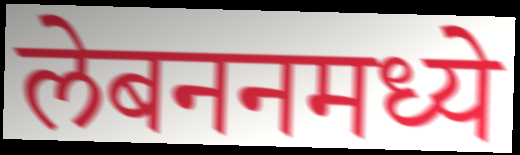
लेबननमध्ये